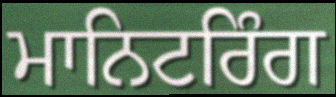
ਮਾਨਿਟਰਿੰਗ